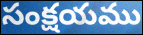
సంక్షయము